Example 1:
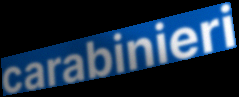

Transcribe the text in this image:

carabinieri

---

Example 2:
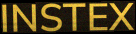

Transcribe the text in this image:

INSTEX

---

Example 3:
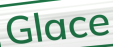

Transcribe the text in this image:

Glace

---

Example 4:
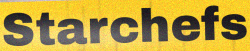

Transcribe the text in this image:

Starchefs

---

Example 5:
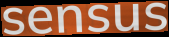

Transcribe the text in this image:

sensus